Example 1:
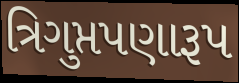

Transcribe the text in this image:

ત્રિગુપ્તપણારૂપ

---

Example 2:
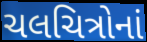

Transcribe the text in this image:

ચલચિત્રોનાં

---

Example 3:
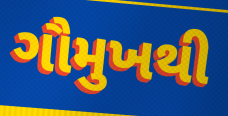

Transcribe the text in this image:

ગૌમુખથી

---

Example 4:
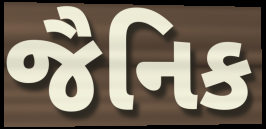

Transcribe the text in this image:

જૈનિક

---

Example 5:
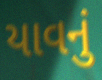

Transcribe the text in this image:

યાવનું